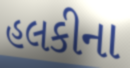
હલકીના